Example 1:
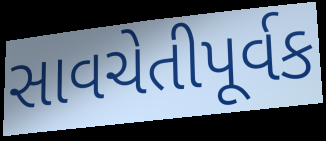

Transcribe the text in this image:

સાવચેતીપૂર્વક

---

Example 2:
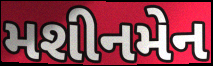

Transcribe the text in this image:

મશીનમેન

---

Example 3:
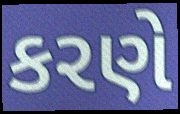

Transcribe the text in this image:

કરણે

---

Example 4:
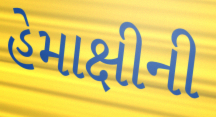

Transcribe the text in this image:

હેમાક્ષીની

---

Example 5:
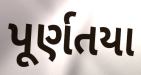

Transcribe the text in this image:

પૂર્ણતયા